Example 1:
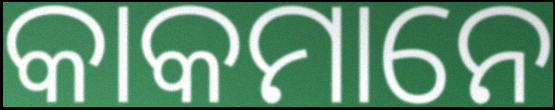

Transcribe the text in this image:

କାକମାନେ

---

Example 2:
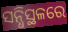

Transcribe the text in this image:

ସନ୍ଧିସ୍ଥଳରେ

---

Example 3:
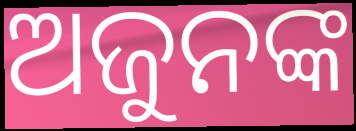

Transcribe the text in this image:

ଅଜୁନଙ୍କ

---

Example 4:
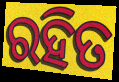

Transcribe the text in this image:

ରହିତ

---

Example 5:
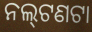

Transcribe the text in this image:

ନଲ୍‍ଟଣଟା